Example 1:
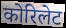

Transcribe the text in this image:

कोरिलेट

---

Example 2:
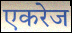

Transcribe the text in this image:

एकरेज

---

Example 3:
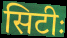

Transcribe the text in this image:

सिटीः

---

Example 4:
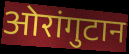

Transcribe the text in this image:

ओरांगुटान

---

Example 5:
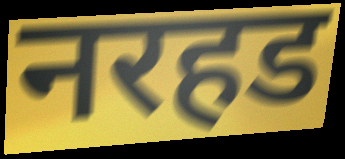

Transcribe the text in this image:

नरहड